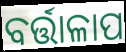
ବର୍ତ୍ତାଳାପ